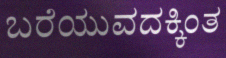
ಬರೆಯುವದಕ್ಕಿಂತ